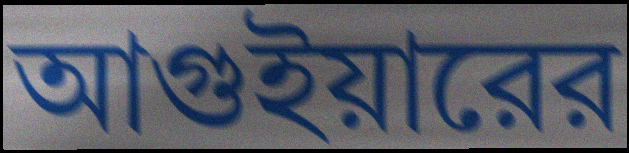
আগুইয়ারের